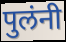
पुलंनी